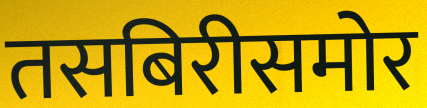
तसबिरीसमोर